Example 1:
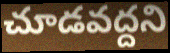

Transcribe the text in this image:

చూడవద్దని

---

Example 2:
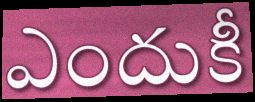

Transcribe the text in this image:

ఎందుకీ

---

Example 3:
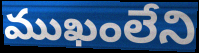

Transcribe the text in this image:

ముఖంలేని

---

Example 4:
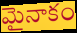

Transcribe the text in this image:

మైనాకం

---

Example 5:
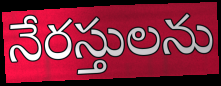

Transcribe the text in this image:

నేరస్తులను